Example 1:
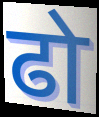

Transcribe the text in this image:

ढो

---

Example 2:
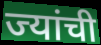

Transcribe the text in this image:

ज्यांची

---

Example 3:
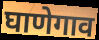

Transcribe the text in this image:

घाणेगाव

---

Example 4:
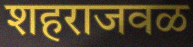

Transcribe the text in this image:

शहराजवळ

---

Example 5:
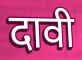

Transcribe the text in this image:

दावी